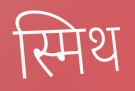
स्मिथ